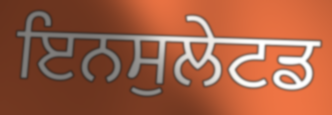
ਇਨਸੁਲੇਟਡ